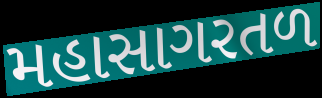
મહાસાગરતળ